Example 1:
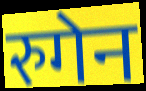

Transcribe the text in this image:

रुगेन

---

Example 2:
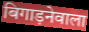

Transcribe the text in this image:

बिगाड़नेवाला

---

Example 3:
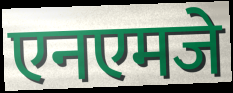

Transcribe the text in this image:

एनएमजे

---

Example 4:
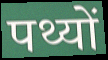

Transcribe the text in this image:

पथ्यों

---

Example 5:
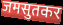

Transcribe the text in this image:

जमसुतकर